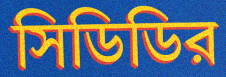
সিডিডির